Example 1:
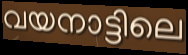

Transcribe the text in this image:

വയനാട്ടിലെ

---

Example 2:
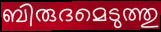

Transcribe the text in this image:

ബിരുദമെടുത്തു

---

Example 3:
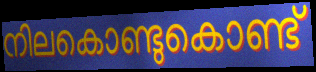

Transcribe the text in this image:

നിലകൊണ്ടുകൊണ്ട്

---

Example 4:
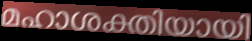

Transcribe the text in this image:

മഹാശക്തിയായി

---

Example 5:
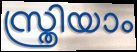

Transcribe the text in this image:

സ്ത്രിയാം